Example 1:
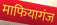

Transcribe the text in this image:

माफियागंज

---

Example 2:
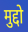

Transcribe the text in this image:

मुद्दो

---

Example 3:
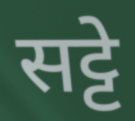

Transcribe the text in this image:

सट्टे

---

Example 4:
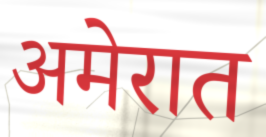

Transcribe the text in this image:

अमेरात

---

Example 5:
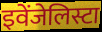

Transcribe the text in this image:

इवेंजेलिस्टा